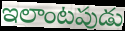
ఇలాంటపుడు